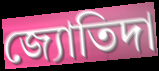
জ্যোতিদা